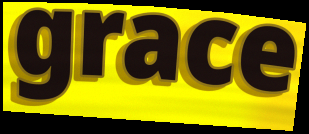
grace